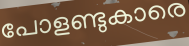
പോളണ്ടുകാരെ